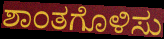
ಶಾಂತಗೊಳಿಸು